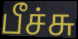
பீச்சு